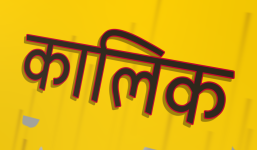
कालिक